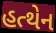
હત્થેન